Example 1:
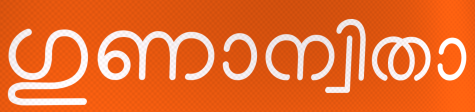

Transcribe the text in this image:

ഗുണാന്വിതാ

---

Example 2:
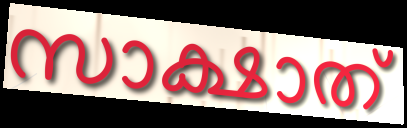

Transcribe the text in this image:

സാക്ഷാത്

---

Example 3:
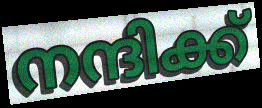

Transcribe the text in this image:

നന്ദിക്ക്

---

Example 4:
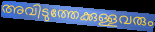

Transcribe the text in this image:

അവിടുത്തേക്കുള്ളവരും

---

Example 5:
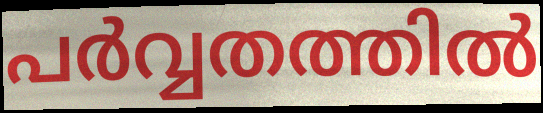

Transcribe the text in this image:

പർവ്വതത്തിൽ